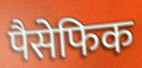
पैसेफिक